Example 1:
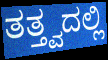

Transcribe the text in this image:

ತತ್ತ್ವದಲ್ಲಿ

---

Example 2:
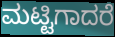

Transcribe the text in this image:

ಮಟ್ಟಿಗಾದರೆ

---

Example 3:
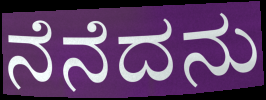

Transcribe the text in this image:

ನೆನೆದನು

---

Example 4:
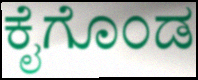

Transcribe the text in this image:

ಕೈಗೊಂಡ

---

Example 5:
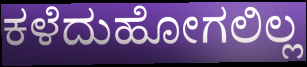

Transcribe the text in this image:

ಕಳೆದುಹೋಗಲಿಲ್ಲ